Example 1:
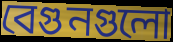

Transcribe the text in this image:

বেগুনগুলো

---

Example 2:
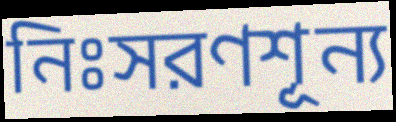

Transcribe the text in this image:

নিঃসরণশূন্য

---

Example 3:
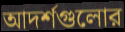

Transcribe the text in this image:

আদর্শগুলোর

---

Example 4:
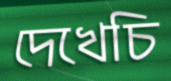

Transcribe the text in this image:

দেখেচি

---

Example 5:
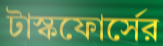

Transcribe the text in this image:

টাস্কফোর্সের